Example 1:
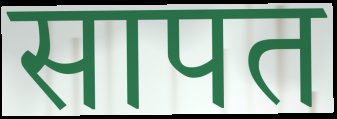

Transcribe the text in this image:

सापत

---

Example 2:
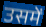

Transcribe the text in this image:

उसमें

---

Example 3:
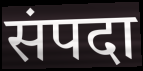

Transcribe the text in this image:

संपदा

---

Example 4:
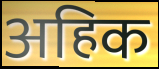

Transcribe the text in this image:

अहिक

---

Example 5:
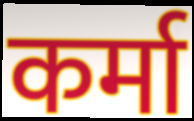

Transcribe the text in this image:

कर्मा